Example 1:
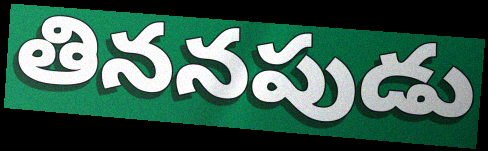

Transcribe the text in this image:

తిననపుడు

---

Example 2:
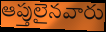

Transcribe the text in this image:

ఆప్తులైనవారు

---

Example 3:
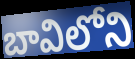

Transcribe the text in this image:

బావిలోని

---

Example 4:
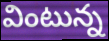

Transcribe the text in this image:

వింటున్న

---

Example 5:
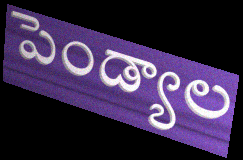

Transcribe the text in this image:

పెండ్యాల